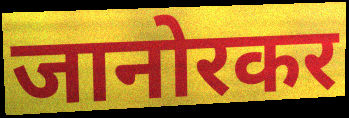
जानोरकर